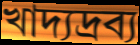
খাদ্যদ্রব্য